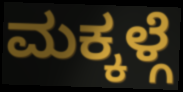
ಮಕ್ಕಳ್ಗೆ